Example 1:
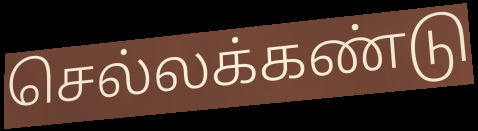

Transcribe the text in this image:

செல்லக்கண்டு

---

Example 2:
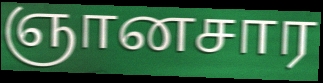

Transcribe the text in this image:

ஞானசார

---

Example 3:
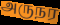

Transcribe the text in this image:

அருநர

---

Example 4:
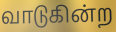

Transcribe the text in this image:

வாடுகின்ற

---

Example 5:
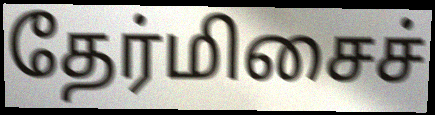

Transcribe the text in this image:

தேர்மிசைச்